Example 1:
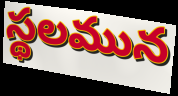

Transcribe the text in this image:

స్థలమున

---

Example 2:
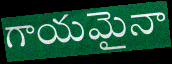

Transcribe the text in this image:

గాయమైనా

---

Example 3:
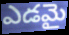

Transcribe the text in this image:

ఎడమై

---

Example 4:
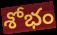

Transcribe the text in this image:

శోభం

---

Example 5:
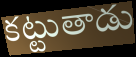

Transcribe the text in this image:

కట్టుతాడు